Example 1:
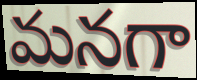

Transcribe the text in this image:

మనగా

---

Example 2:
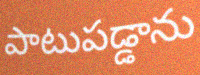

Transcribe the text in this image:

పాటుపడ్డాను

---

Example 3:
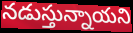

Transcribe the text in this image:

నడుస్తున్నాయని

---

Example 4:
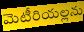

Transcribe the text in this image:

మెటీరియల్లను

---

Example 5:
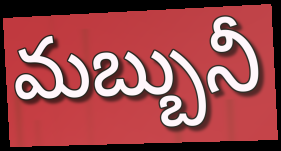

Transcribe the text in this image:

మబ్బునీ